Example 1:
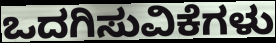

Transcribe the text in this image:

ಒದಗಿಸುವಿಕೆಗಳು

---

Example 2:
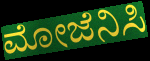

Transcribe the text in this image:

ಮೋಜೆನಿಸಿ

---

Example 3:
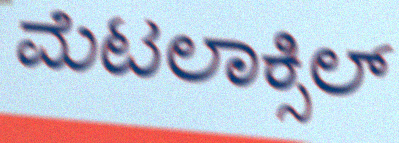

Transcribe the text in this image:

ಮೆಟಲಾಕ್ಸಿಲ್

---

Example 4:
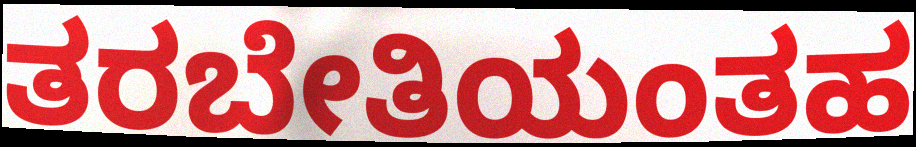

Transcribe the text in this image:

ತರಬೇತಿಯಂತಹ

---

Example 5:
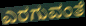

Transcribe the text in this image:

ಎರಗುವಂತೆ